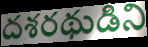
దశరథుడిని